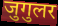
जुगुलर